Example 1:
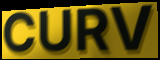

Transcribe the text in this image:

CURV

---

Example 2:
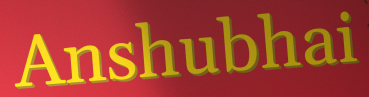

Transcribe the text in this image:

Anshubhai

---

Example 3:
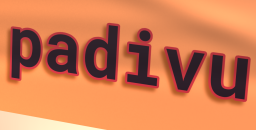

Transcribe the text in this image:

padivu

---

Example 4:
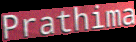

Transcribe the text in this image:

Prathima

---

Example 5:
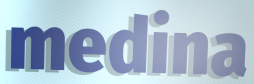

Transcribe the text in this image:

medina